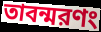
তাবন্মরণং